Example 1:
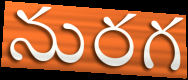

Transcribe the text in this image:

నురగ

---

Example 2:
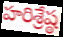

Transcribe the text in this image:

హరిశ్రేష్ఠ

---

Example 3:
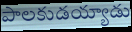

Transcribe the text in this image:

పాలకుడయ్యాడు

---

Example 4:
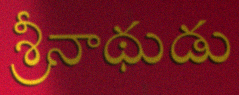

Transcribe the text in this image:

శ్రీనాథుడు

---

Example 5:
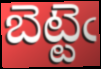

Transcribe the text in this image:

బెట్టెఁ